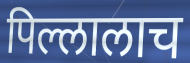
पिल्लालाच